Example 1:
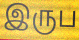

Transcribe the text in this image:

இருப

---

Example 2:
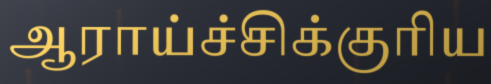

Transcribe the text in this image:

ஆராய்ச்சிக்குரிய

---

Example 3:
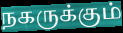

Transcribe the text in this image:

நகருக்கும்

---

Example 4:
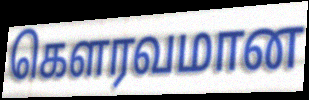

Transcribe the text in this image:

கெளரவமான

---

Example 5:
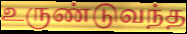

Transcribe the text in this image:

உருண்டுவந்த